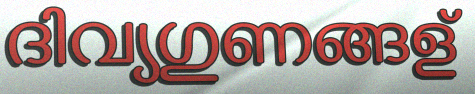
ദിവ്യഗുണങ്ങള്